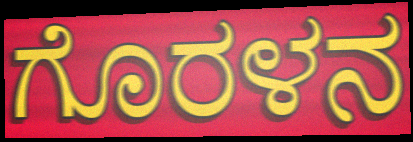
ಗೊರಳನ